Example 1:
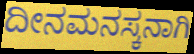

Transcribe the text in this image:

ದೀನಮನಸ್ಕನಾಗಿ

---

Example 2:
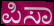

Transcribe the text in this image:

ಪಿಸಾ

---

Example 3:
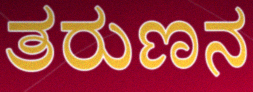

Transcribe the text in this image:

ತರುಣನ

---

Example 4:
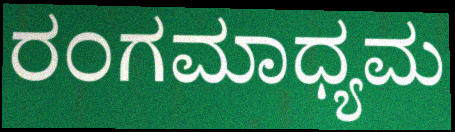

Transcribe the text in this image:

ರಂಗಮಾಧ್ಯಮ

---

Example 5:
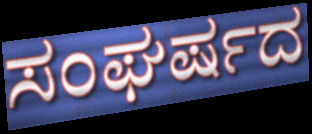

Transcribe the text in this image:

ಸಂಘರ್ಷದ